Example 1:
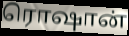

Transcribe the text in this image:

ரொஷான்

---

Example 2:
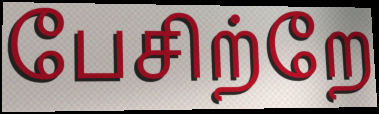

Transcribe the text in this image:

பேசிற்றே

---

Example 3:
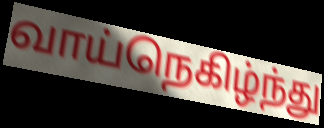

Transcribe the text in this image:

வாய்நெகிழ்ந்து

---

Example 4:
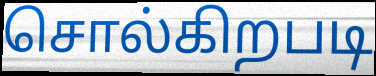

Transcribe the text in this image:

சொல்கிறபடி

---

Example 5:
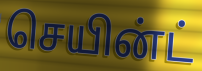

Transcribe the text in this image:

செயின்ட்